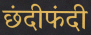
छंदीफंदी